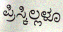
ಪ್ರಿಸ್ಕಿಲ್ಲಳೂ